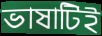
ভাষাটিই